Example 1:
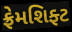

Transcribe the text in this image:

ફ્રેમશિફ્ટ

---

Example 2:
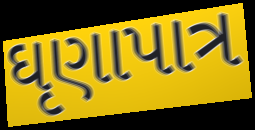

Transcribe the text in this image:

ઘૃણાપાત્ર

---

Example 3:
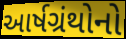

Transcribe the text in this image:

આર્ષગ્રંથોનો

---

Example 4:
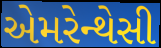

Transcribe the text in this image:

એમરેન્થેસી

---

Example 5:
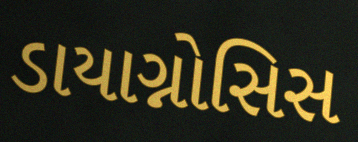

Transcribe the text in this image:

ડાયાગ્નોસિસ